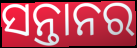
ସନ୍ତାନର